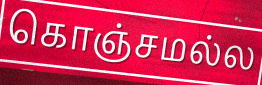
கொஞ்சமல்ல